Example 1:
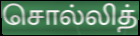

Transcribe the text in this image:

சொல்லித்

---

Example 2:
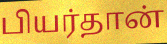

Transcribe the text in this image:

பியர்தான்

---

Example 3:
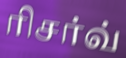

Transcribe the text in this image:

ரிசர்வ்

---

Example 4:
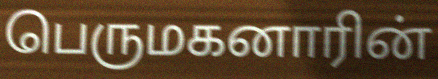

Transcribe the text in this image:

பெருமகனாரின்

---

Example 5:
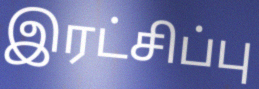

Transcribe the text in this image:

இரட்சிப்பு